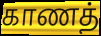
காணத்